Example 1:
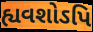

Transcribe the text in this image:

હ્યવશોઽપિ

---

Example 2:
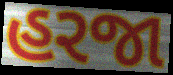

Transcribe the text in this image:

હરજા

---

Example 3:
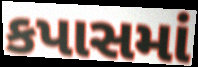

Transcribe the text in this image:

કપાસમાં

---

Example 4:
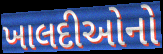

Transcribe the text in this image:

ખાલદીઓનો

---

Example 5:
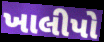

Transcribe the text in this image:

ખાલીપો